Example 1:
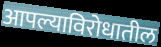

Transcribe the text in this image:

आपल्याविरोधातील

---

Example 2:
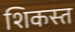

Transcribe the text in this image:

शिकस्त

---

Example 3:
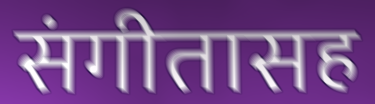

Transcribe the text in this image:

संगीतासह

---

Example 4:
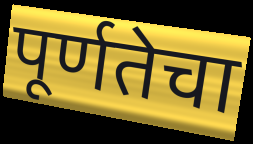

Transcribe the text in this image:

पूर्णतेचा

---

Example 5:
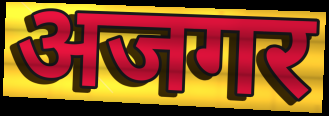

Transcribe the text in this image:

अजगर